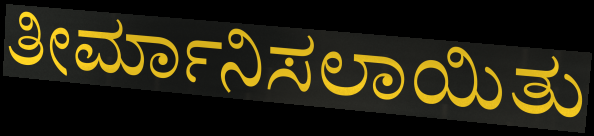
ತೀರ್ಮಾನಿಸಲಾಯಿತು